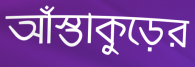
আঁস্তাকুড়ের